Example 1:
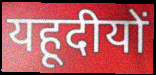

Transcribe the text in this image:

यहूदीयों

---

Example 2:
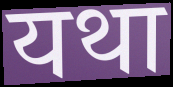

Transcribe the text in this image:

यथा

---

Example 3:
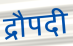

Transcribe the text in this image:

द्रौपदी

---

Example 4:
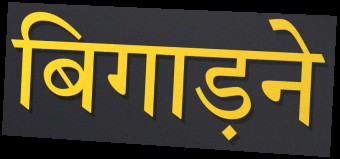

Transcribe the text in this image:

बिगाड़ने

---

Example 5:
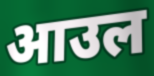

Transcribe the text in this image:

आउल